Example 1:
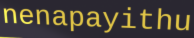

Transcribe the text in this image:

nenapayithu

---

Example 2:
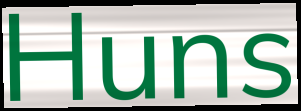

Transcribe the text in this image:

Huns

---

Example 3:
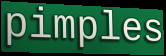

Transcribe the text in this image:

pimples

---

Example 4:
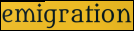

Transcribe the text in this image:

emigration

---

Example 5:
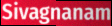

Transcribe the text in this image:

Sivagnanam